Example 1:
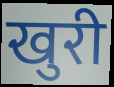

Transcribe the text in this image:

खुरी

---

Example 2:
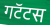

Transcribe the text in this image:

गटॅटस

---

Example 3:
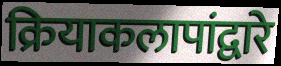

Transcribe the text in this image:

क्रियाकलापांद्वारे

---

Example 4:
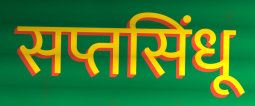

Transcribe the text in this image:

सप्तसिंधू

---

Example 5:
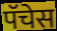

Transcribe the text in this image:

पॅचेस